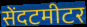
सेंदटमीटर